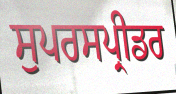
ਸੁਪਰਸਪ੍ਰੀਡਰ